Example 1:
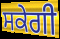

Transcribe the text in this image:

ਸਕੇਗੀ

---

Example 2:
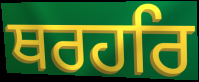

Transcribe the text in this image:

ਥਰਹਰਿ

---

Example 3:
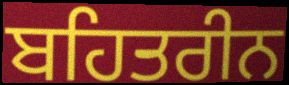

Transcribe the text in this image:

ਬਹਿਤਰੀਨ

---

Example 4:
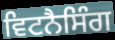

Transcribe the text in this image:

ਵਿਟਨੈਸਿੰਗ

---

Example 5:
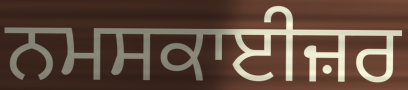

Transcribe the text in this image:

ਨਮਸਕਾਈਜ਼ਰ